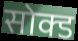
सोक्ड